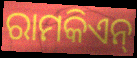
ରାମକିଏନ୍